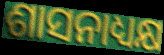
ଶାସନାଧ୍ୟକ୍ଷ